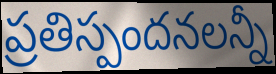
ప్రతిస్పందనలన్నీ